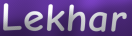
Lekhar